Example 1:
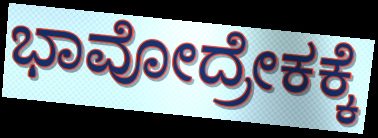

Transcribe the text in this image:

ಭಾವೋದ್ರೇಕಕ್ಕೆ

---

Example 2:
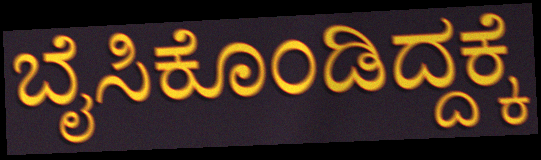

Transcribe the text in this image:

ಬೈಸಿಕೊಂಡಿದ್ದಕ್ಕೆ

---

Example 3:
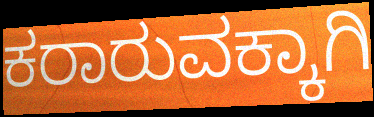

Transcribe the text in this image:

ಕರಾರುವಕ್ಕಾಗಿ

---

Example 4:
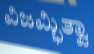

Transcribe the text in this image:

ವಿಜಮ್ಭಿತ್ವಾ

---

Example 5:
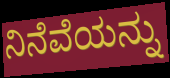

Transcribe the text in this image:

ನಿನೆವೆಯನ್ನು